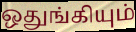
ஒதுங்கியும்